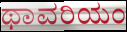
ಥಾವರಿಯಂ